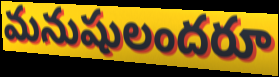
మనుషులందరూ